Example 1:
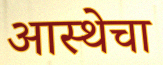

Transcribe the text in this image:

आस्थेचा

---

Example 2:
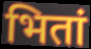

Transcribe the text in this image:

भितां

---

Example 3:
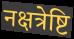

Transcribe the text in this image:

नक्षत्रेष्टि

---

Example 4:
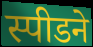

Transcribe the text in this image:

स्पीडने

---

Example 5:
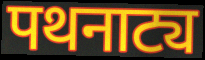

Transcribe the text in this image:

पथनाट्य